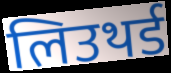
लिउथर्ड